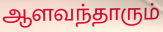
ஆளவந்தாரும்